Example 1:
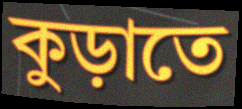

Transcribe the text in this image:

কুড়াতে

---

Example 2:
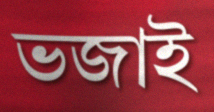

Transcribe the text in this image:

ভজাই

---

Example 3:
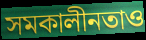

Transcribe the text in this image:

সমকালীনতাও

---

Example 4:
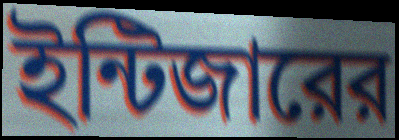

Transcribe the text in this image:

ইন্টিজারের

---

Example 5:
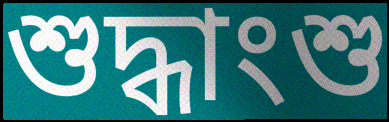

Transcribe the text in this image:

শুদ্ধাংশু